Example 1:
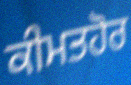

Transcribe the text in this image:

ਕੀਮਤਹੋਰ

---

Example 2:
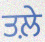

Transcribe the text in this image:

ਤਲ਼ੇ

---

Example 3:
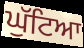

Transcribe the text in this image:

ਘੁੱਟਿਆ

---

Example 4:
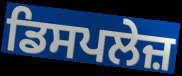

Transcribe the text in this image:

ਡਿਸਪਲੇਜ਼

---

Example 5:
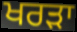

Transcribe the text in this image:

ਖਰੜਾ